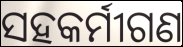
ସହକର୍ମୀଗଣ